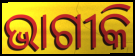
ଭାଗୀକି